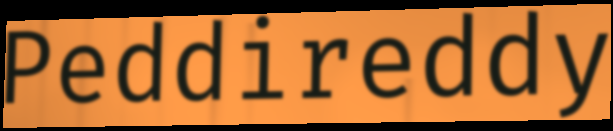
Peddireddy